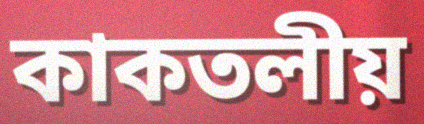
কাকতলীয়